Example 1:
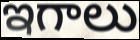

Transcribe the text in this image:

ఇగాలు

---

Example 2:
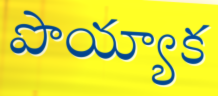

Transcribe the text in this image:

పొయ్యాక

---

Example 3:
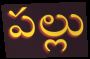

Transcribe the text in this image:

పల్లు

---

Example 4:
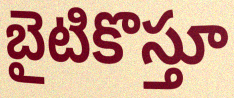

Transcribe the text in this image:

బైటికొస్తూ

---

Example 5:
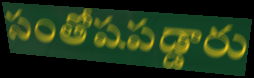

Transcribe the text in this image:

సంతోషపడ్డారు